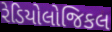
રેડિયોલોજિકલ